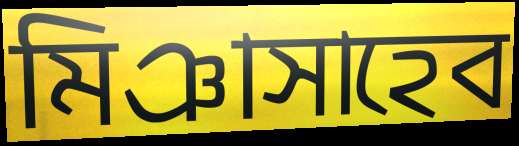
মিঞাসাহেব